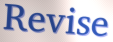
Revise